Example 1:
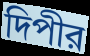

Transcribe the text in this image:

দিপীর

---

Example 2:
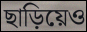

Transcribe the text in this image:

ছাড়িয়েও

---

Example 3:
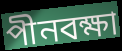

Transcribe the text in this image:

পীনবক্ষা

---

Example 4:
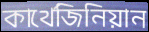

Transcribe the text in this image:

কার্থেজিনিয়ান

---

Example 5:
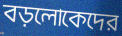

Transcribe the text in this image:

বড়লোকেদের